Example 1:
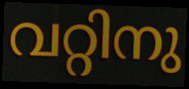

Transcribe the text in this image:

വറ്റിനു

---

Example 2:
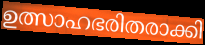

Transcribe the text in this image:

ഉത്സാഹഭരിതരാക്കി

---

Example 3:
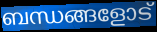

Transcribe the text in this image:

ബന്ധങ്ങളോട്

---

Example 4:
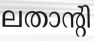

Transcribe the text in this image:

ലതാന്റി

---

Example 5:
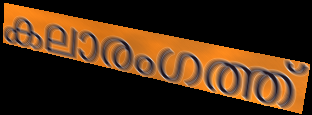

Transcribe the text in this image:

കലാരംഗത്ത്